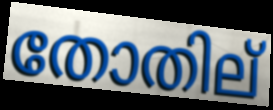
തോതില്